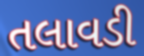
તલાવડી